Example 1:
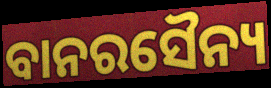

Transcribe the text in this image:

ବାନରସୈନ୍ୟ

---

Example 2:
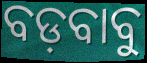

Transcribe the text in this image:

ବଡ଼ବାବୁ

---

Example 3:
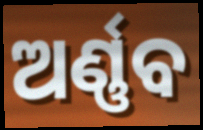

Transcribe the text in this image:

ଅର୍ଣ୍ଣବ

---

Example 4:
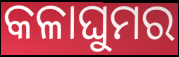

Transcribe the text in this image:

କଳାଘୁମର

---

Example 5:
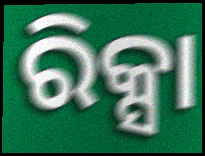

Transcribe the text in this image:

ରିକ୍ସା